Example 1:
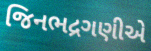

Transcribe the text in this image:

જિનભદ્રગણીએ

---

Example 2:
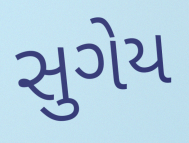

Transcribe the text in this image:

સુગેય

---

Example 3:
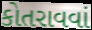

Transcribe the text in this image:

કોતરાવવાં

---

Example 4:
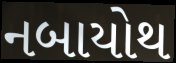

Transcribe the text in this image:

નબાયોથ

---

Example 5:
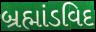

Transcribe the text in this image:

બ્રહ્માંડવિદ